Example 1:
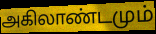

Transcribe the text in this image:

அகிலாண்டமும்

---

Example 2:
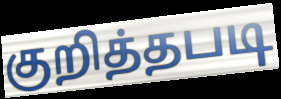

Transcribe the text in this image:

குறித்தபடி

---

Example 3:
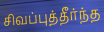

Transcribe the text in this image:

சிவப்புத்தீர்ந்த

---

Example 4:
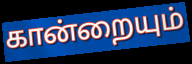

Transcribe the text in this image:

கான்றையும்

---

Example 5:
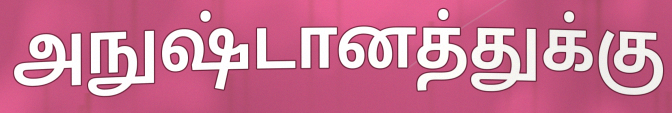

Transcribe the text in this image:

அநுஷ்டானத்துக்கு